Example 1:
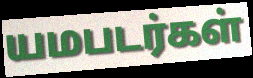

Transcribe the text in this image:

யமபடர்கள்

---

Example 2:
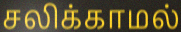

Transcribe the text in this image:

சலிக்காமல்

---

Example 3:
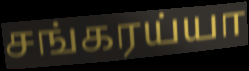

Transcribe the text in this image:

சங்கரய்யா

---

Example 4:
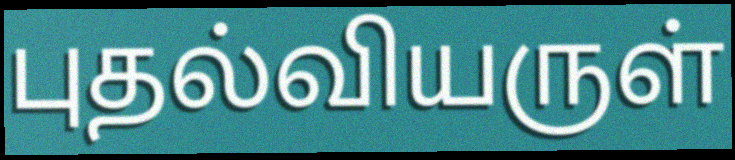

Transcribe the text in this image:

புதல்வியருள்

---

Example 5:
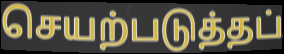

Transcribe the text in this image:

செயற்படுத்தப்